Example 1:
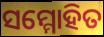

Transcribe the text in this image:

ସମ୍ମୋହିତ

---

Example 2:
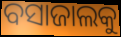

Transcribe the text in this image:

ବସାଜାଲକୁ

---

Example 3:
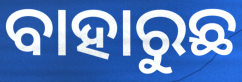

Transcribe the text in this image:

ବାହାରୁଛ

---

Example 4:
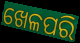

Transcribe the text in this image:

ଖେଳପରି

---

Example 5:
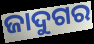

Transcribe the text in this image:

ଜାଦୁଗର